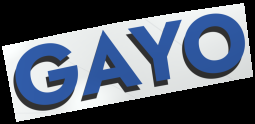
GAYO